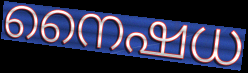
നൈഷധ